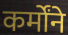
कर्मोंने